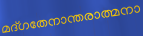
മദ്ഗതേനാന്തരാത്മനാ